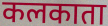
कलकाता